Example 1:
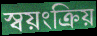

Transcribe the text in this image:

স্বয়ংক্রিয়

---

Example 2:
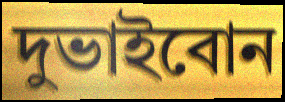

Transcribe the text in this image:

দুভাইবোন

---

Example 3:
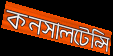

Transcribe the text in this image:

কনসালটেন্সি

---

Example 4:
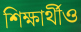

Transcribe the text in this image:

শিক্ষার্থীও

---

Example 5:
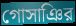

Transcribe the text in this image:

গোসাঞির